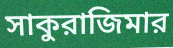
সাকুরাজিমার